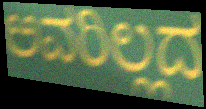
ಅವರಿಲ್ಲದ